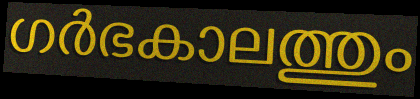
ഗർഭകാലത്തും